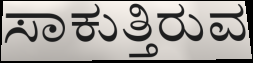
ಸಾಕುತ್ತಿರುವ